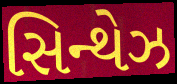
સિન્થેઝ